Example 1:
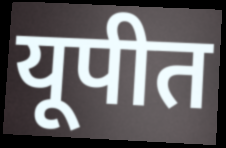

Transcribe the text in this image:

यूपीत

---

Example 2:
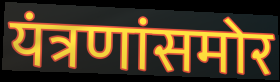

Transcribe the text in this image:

यंत्रणांसमोर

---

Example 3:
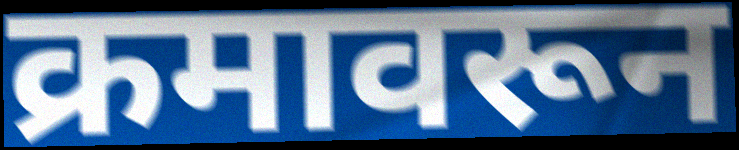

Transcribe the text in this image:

क्रमावरून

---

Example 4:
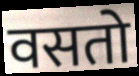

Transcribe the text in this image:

वसतो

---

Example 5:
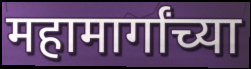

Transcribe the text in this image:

महामार्गांच्या